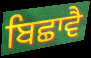
ਬਿਛਾਵੈ